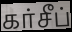
கர்சீப்